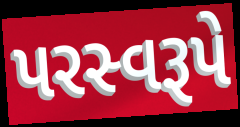
પરસ્વરૂપે